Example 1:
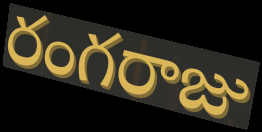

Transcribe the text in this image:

రంగరాజు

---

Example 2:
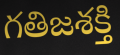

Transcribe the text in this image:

గతిజశక్తి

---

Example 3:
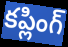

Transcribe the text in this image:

కప్లింగ్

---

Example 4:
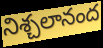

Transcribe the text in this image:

నిశ్చలానంద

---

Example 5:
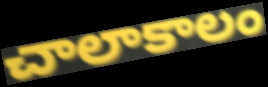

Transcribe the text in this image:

చాలాకాలం